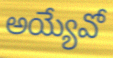
అయ్యేవో